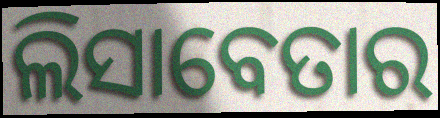
ଲିସାବେତାର